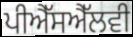
ਪੀਐੱਸਐੱਲਵੀ